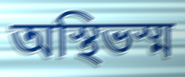
অস্থিভস্ম